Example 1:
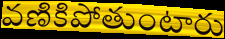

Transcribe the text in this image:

వణికిపోతుంటారు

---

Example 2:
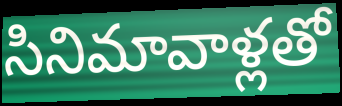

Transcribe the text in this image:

సినిమావాళ్లతో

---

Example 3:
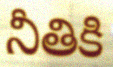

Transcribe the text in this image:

నీతికి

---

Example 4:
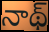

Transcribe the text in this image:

నాథ్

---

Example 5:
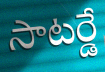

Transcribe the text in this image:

సాటర్డే